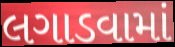
લગાડવામાં